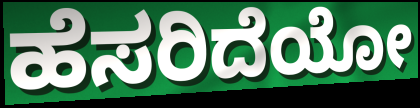
ಹೆಸರಿದೆಯೋ